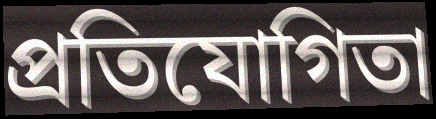
প্ৰতিযোগিতা